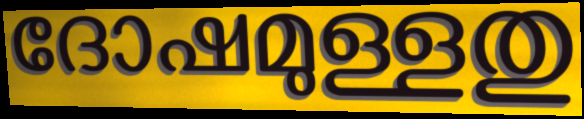
ദോഷമുള്ളതു